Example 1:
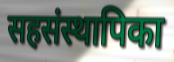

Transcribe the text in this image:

सहसंस्थापिका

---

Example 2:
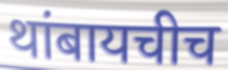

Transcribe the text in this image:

थांबायचीच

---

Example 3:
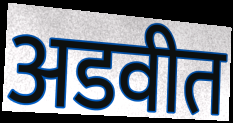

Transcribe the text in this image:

अडवीत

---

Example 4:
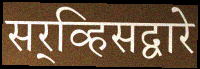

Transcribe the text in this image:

सर्व्हिसद्वारे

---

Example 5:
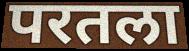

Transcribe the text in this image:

परतला